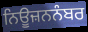
ਨਿਊਜ਼ਨਨੰਬਰ